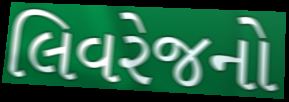
લિવરેજનો